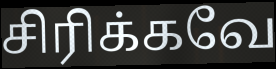
சிரிக்கவே